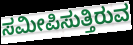
ಸಮೀಪಿಸುತ್ತಿರುವ